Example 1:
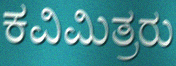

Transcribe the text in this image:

ಕವಿಮಿತ್ರರು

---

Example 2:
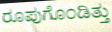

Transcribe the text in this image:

ರೂಪುಗೊಂಡಿತ್ತು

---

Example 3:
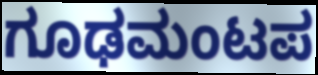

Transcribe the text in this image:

ಗೂಢಮಂಟಪ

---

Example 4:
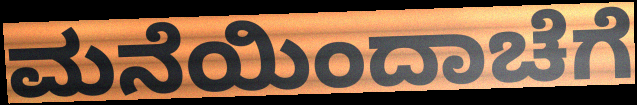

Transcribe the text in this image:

ಮನೆಯಿಂದಾಚೆಗೆ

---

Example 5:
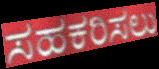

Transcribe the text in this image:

ಸಹಕರಿಸಲು